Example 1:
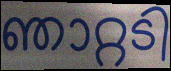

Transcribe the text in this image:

ഞാറ്റടി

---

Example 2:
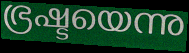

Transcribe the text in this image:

ഭ്രഷ്ടയെന്നു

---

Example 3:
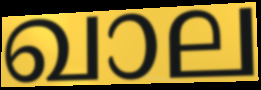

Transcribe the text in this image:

ഖാല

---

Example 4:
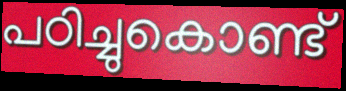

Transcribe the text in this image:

പഠിച്ചുകൊണ്ട്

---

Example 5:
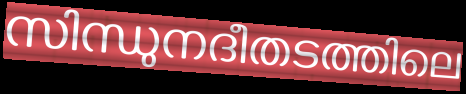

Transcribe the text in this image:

സിന്ധുനദീതടത്തിലെ